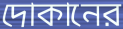
দোকানের